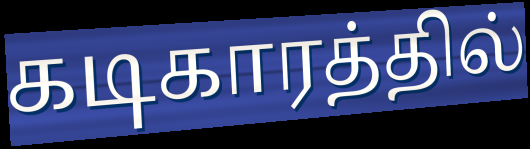
கடிகாரத்தில்